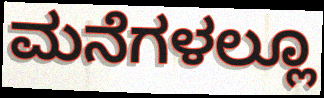
ಮನೆಗಳಲ್ಲೂ